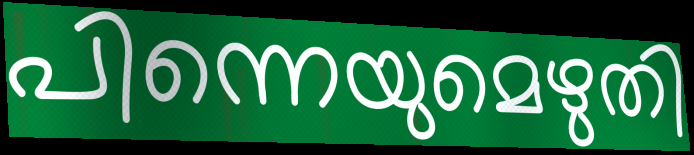
പിന്നെയുമെഴുതി